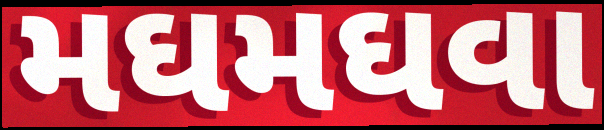
મઘમઘવા